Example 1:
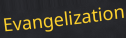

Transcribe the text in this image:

Evangelization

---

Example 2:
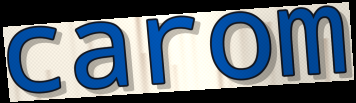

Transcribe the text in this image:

carom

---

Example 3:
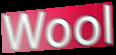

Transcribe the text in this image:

Wool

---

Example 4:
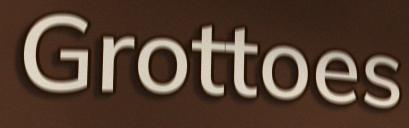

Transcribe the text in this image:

Grottoes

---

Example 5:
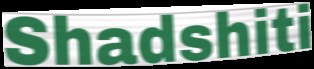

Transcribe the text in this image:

Shadshiti